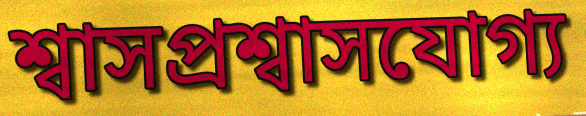
শ্বাসপ্রশ্বাসযোগ্য